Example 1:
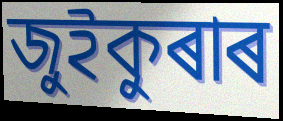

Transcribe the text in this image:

জুইকুৰাৰ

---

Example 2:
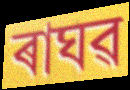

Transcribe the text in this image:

ৰাঘৱ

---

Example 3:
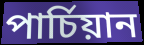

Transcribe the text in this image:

পাৰ্চিয়ান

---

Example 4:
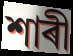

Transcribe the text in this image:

শাৰী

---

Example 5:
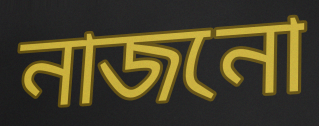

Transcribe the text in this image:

নাজনো